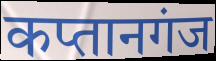
कप्तानगंज